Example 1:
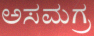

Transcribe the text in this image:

ಅಸಮಗ್ರ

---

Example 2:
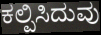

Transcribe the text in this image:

ಕಲ್ಪಿಸಿದುವು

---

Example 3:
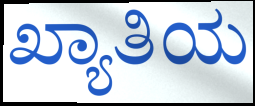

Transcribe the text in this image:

ಖ್ಯಾತಿಯ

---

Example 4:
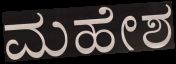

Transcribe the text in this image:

ಮಹೇಶ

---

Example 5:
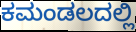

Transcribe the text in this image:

ಕಮಂಡಲದಲ್ಲಿ